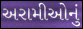
અરામીઓનું